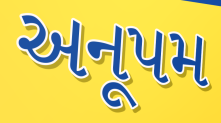
અનૂપમ